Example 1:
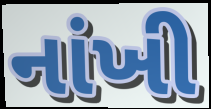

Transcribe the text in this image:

નાંખી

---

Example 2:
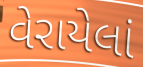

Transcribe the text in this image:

વેરાયેલાં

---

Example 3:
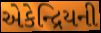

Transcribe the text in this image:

એકેન્દ્રિયની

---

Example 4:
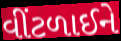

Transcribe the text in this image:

વીંટળાઈને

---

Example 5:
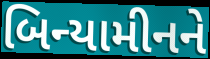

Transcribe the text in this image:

બિન્યામીનને